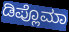
ಡಿಪ್ಲೊಮಾ